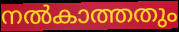
നൽകാത്തതും